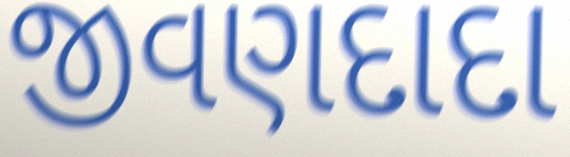
જીવણદાદા